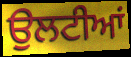
ਉਲਟੀਆਂ